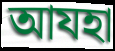
আযহা